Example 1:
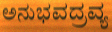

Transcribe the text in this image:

ಅನುಭವದ್ರವ್ಯ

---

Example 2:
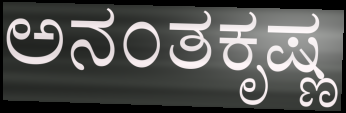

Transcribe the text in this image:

ಅನಂತಕೃಷ್ಣ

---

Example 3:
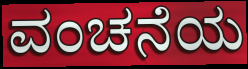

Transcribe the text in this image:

ವಂಚನೆಯ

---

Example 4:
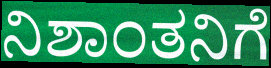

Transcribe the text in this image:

ನಿಶಾಂತನಿಗೆ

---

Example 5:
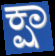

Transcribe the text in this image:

ಕ್ಷಾ